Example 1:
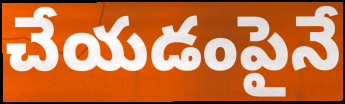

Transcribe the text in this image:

చేయడంపైనే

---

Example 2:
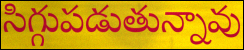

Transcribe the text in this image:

సిగ్గుపడుతున్నావు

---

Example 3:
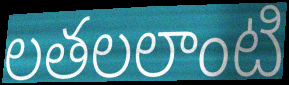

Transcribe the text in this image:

లతలలాంటి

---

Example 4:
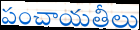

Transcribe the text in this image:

పంచాయతీలు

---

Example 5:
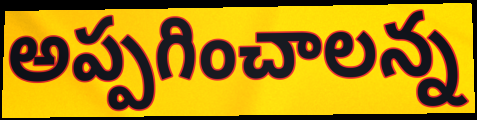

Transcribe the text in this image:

అప్పగించాలన్న